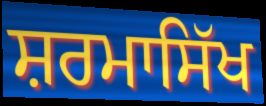
ਸ਼ਰਮਾਸਿੱਖ